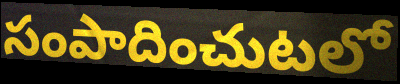
సంపాదించుటలో